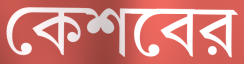
কেশবের